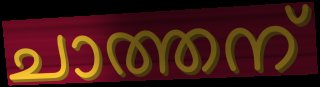
ചാത്തന്